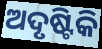
ଅଦୃଷ୍ଟିକି